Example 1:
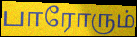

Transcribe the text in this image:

பாரோரும்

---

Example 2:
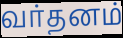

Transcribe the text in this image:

வர்தனம்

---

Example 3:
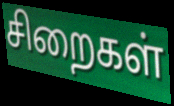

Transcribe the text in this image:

சிறைகள்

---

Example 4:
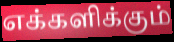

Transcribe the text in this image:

எக்களிக்கும்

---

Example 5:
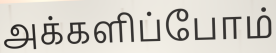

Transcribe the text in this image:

அக்களிப்போம்